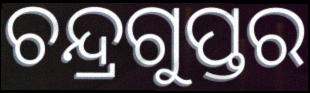
ଚନ୍ଦ୍ରଗୁପ୍ତର